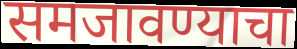
समजावण्याचा